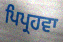
ਪਿਪ੍ਰਹਵਾ